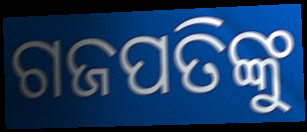
ଗଜପତିଙ୍କୁ